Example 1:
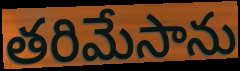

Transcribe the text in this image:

తరిమేసాను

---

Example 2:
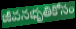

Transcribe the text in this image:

జీవనభృతికోసం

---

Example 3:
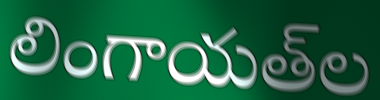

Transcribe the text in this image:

లింగాయత్‌ల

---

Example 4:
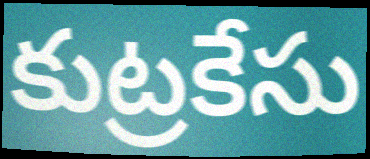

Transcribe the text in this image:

కుట్రకేసు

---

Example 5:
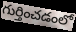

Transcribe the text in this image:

గుర్తించడంలో